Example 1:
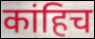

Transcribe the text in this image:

कांहिच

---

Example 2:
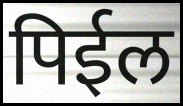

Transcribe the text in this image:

पिईल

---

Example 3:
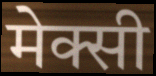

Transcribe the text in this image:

मेक्सी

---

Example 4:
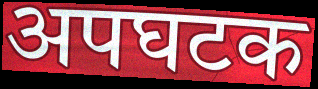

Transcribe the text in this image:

अपघटक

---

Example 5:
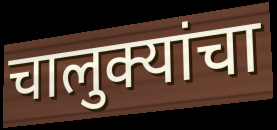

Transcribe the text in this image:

चालुक्यांचा